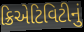
ક્રિએટિવિટીનું